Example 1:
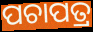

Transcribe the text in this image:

ପଚାପତ୍ର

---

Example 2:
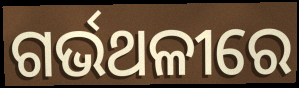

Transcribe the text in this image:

ଗର୍ଭଥଳୀରେ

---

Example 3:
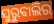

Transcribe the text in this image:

ସୁରୁବାଲିର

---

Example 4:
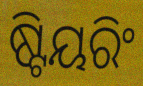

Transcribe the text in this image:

ଷ୍ଟିୟରିଂ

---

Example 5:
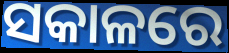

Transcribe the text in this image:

ସକାଳରେ